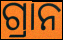
ଗ୍ରାନ